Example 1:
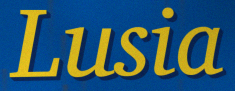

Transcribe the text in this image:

Lusia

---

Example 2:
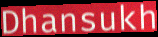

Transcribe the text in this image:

Dhansukh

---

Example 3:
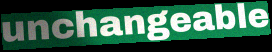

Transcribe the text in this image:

unchangeable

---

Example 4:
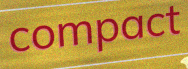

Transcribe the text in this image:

compact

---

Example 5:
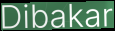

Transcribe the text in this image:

Dibakar